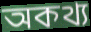
অকথ্য